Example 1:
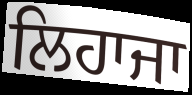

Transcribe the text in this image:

ਲਿਹਾਜਾ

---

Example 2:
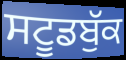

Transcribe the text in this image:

ਸਟੂਡਬੁੱਕ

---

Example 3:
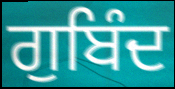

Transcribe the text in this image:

ਗੁਬਿੰਦ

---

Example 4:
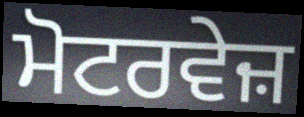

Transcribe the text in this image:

ਮੋਟਰਵੇਜ਼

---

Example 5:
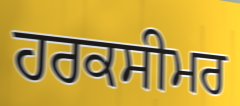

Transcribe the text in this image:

ਹਰਕਸੀਮਰ